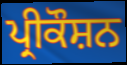
ਪ੍ਰੀਕੌਸ਼ਨ